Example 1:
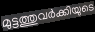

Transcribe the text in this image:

മുട്ടത്തുവർക്കിയുടെ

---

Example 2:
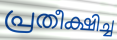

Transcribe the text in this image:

പ്രതീക്ഷിച്ച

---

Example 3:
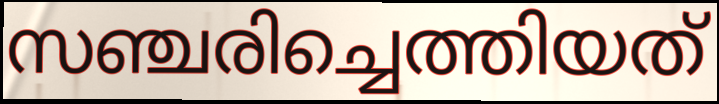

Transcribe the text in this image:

സഞ്ചരിച്ചെത്തിയത്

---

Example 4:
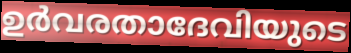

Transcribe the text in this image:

ഉർവരതാദേവിയുടെ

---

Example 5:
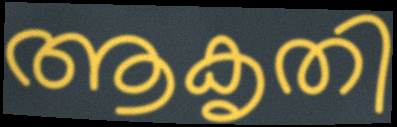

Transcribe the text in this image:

ആകൃതി